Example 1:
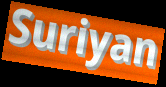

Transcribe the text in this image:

Suriyan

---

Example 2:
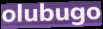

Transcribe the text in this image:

olubugo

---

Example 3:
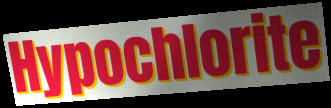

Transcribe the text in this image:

Hypochlorite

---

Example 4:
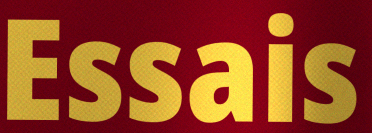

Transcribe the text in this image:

Essais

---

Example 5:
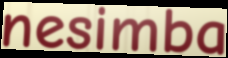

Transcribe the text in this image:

nesimba